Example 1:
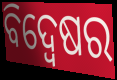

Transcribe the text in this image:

ବିଦ୍ବେଷର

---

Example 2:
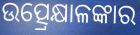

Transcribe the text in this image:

ଉତ୍ପ୍ରେକ୍ଷାଳଙ୍କାର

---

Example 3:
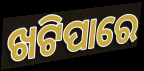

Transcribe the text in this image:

ଖଟିପାରେ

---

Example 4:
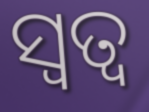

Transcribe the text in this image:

ସ୍ୱତ୍ୱ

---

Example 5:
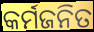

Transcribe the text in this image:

କର୍ମଜନିତ